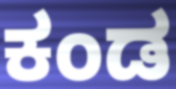
ಕಂಡ